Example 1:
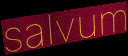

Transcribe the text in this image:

salvum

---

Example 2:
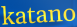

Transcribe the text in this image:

katano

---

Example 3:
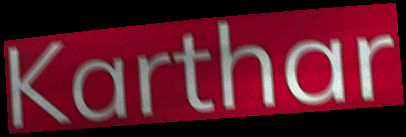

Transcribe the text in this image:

Karthar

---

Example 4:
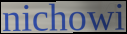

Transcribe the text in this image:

nichowi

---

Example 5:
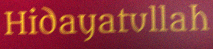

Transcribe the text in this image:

Hidayatullah